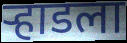
ऱ्हाडला